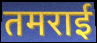
तमराई